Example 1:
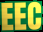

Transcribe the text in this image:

EEC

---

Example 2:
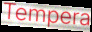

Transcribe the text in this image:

Tempera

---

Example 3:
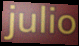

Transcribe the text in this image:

julio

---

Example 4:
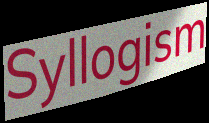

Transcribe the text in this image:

Syllogism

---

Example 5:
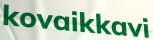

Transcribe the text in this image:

kovaikkavi